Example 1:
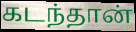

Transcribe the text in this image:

கடந்தான்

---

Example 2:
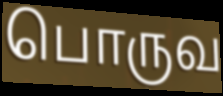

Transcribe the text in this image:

பொருவ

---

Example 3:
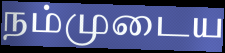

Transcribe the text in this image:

நம்முடைய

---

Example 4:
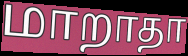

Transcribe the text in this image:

மாறாதா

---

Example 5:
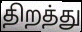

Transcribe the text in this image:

திறத்து